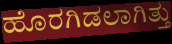
ಹೊರಗಿಡಲಾಗಿತ್ತು